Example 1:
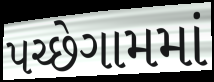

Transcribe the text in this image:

પચ્છેગામમાં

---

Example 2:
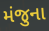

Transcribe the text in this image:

મંજુના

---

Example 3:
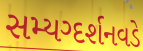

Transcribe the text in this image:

સમ્યગ્દર્શનવડે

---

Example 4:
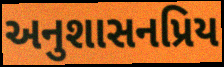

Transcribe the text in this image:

અનુશાસનપ્રિય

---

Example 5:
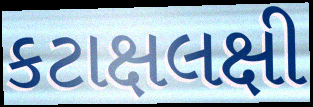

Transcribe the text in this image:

કટાક્ષલક્ષી